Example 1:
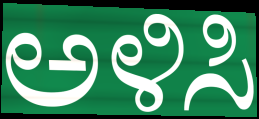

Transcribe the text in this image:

ಅಳಿಸಿ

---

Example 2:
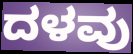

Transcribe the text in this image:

ದಳವು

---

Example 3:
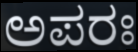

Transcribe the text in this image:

ಅಪರಃ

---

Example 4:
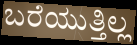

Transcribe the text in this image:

ಬರೆಯುತ್ತಿಲ್ಲ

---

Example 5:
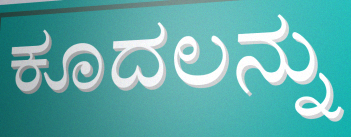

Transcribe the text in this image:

ಕೂದಲನ್ನು